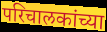
परिचालकांच्या